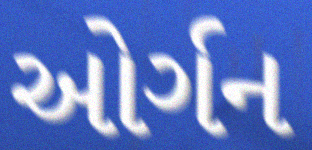
ઓર્ગન